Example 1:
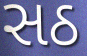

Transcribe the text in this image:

સઠ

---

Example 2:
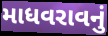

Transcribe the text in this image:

માધવરાવનું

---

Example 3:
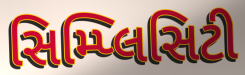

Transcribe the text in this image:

સિમ્પ્લિસિટી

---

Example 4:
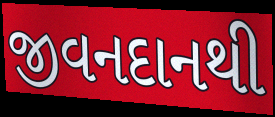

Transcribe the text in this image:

જીવનદાનથી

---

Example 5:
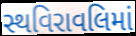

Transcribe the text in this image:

સ્થવિરાવલિમાં